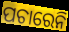
ପଚାରେନି